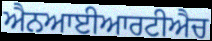
ਐਨਆਈਆਰਟੀਐਚ